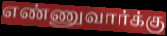
எண்ணுவார்க்கு